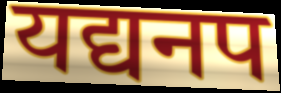
यद्यनप